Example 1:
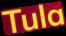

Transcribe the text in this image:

Tula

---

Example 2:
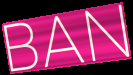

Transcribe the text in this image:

BAN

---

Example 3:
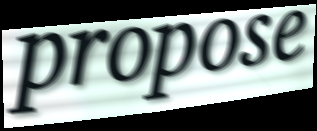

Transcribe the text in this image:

propose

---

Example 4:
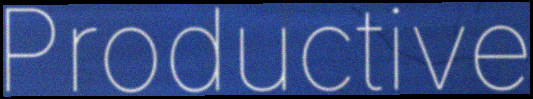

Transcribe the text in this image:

Productive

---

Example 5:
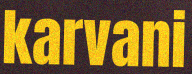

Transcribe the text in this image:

karvani